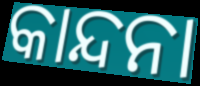
କାନ୍ଦନା